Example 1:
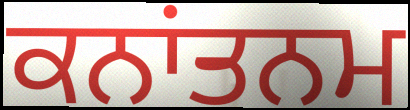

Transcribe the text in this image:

ਕਨਾਂਤਨਮ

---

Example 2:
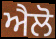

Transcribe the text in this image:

ਐਲੋ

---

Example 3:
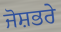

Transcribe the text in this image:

ਜੋਸ਼ਭਰੇ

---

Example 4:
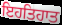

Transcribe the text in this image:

ਇਹਤਿਹਾਤ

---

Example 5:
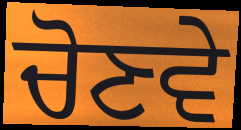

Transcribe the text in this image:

ਚੋਣਵੇ